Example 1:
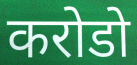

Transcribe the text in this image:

करोडो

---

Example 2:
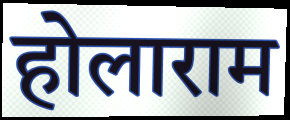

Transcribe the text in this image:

होलाराम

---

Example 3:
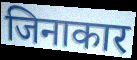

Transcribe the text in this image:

जिनाकार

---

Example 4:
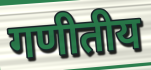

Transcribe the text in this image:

गणीतीय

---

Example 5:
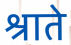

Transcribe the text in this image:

श्राते